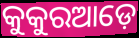
କୁକୁରଆଡ଼େ